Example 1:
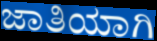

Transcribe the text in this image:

ಜಾತಿಯಾಗಿ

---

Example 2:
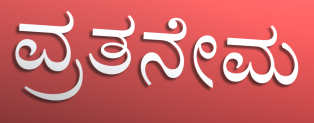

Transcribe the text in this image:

ವ್ರತನೇಮ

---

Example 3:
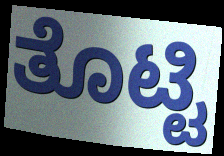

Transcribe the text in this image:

ತೊಟ್ಟಿ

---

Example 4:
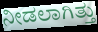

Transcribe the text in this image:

ನೀಡಲಾಗಿತ್ತು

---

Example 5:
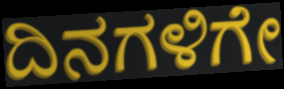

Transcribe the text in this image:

ದಿನಗಳಿಗೇ